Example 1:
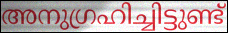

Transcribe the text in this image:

അനുഗ്രഹിച്ചിട്ടുണ്ട്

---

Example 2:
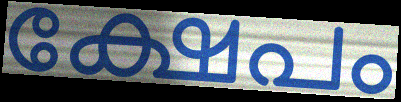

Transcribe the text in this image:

ക്ഷേപം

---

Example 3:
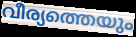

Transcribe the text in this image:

വീര്യത്തെയും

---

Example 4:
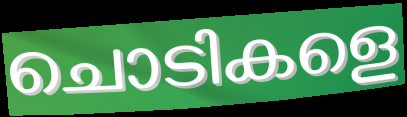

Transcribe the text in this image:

ചൊടികളെ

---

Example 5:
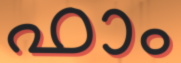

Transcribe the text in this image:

ഫാം